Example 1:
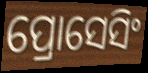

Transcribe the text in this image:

ପ୍ରୋସେସିଂ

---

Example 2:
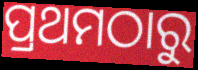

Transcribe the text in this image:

ପ୍ରଥମଠାରୁ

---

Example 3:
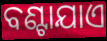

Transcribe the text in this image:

ବଣ୍ଟାଯାଏ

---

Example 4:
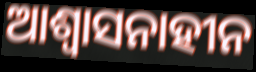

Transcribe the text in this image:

ଆଶ୍ୱାସନାହୀନ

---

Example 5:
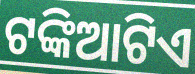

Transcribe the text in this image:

ଟଙ୍କିଆଟିଏ